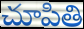
చూపితి